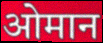
ओमान